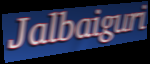
Jalbaiguri